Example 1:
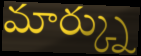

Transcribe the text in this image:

మార్క్ను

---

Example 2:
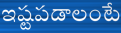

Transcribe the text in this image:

ఇష్టపడాలంటే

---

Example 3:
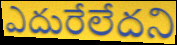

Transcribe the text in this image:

ఎదురేలేదని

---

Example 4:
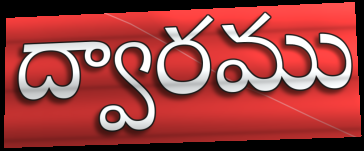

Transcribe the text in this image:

ద్వారము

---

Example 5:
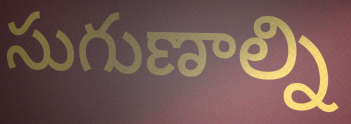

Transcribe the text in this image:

సుగుణాల్ని